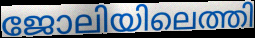
ജോലിയിലെത്തി